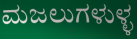
ಮಜಲುಗಳುಳ್ಳ